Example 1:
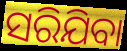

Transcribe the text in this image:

ସରିଯିବା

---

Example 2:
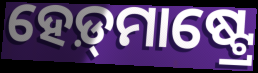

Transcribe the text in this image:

ହେଡ଼୍‍ମାଷ୍ଟ୍ରେ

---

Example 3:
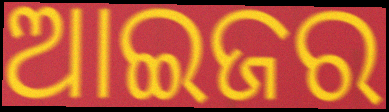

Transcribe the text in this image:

ଆଇଜର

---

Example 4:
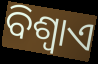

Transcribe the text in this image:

ବିଶ୍ୱାଏ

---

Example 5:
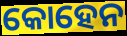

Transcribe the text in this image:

କୋହେନ